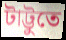
টাট্টুতে